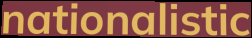
nationalistic